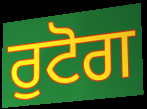
ਰੁਟੋਗ